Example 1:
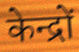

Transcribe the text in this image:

केन्द्रों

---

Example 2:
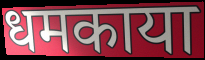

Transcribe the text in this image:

धमकाया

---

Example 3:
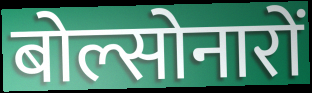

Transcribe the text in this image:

बोल्सोनारों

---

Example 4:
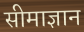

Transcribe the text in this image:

सीमाज्ञान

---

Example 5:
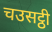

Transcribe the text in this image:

चउसट्ठी